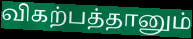
விகற்பத்தானும்